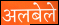
अलबेले